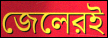
জেলেরই